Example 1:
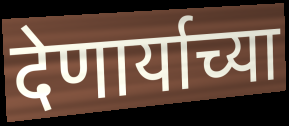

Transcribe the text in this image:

देणार्याच्या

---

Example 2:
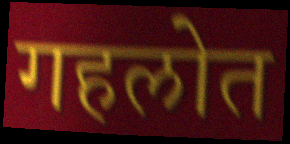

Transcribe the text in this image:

गहलोत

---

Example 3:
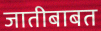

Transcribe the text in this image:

जातीबाबत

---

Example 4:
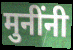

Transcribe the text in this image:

मुनींनी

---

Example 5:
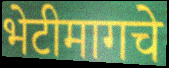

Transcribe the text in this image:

भेटीमागचे